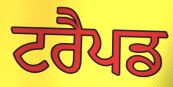
ਟਰੈਪਡ